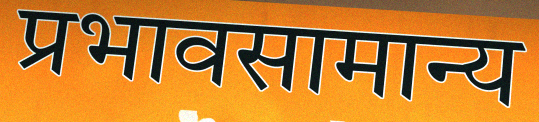
प्रभावसामान्य